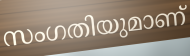
സംഗതിയുമാണ്